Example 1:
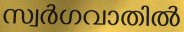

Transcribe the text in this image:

സ്വർഗവാതിൽ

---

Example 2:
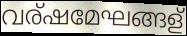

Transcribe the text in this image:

വര്ഷമേഘങ്ങള്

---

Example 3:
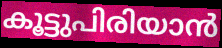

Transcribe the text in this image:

കൂട്ടുപിരിയാൻ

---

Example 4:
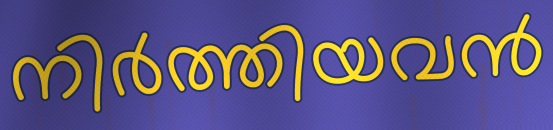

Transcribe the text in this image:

നിർത്തിയവൻ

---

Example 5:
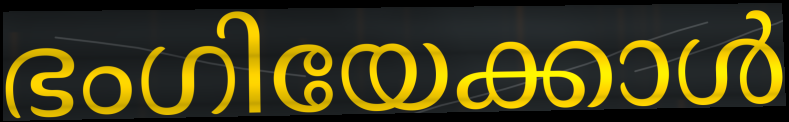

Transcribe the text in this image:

ഭംഗിയേക്കാൾ